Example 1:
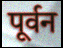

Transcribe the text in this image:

पूर्वन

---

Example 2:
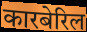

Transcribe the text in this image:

कारबेरिल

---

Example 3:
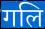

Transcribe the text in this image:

गलि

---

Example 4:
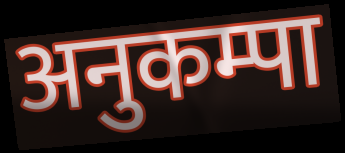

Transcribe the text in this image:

अनुकम्‍पा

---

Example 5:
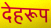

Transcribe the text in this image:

देहरूप